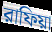
রাফিয়া